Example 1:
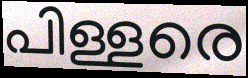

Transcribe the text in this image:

പിള്ളരെ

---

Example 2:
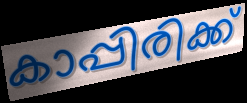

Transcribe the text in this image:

കാപ്പിരിക്ക്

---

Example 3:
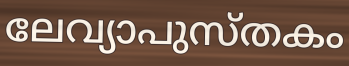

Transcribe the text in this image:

ലേവ്യാപുസ്തകം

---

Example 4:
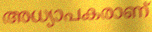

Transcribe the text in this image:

അധ്യാപകരാണ്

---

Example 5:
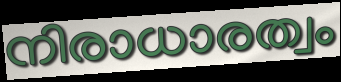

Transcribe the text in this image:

നിരാധാരത്വം